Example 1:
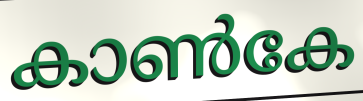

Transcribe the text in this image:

കാൺകേ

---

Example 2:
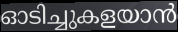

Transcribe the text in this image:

ഓടിച്ചുകളയാൻ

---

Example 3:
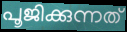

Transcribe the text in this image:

പൂജിക്കുന്നത്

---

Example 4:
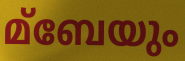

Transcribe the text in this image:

മ്ബേയും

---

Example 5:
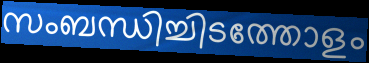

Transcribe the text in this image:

സംബന്ധിച്ചിടത്തോളം